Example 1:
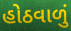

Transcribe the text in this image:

હોઠવાળું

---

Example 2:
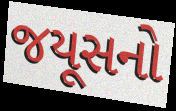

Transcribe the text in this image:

જયૂસનો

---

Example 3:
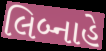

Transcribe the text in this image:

લિબ્નાહે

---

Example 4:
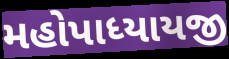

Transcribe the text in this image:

મહોપાધ્યાયજી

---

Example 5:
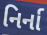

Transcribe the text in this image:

નિર્ના